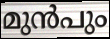
മുൻപും